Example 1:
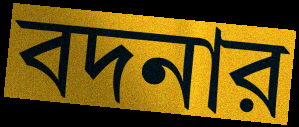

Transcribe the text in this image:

বদনার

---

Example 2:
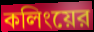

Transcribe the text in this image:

কলিংয়ের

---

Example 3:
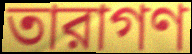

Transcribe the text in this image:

তারাগণ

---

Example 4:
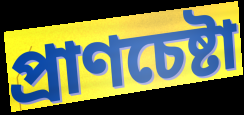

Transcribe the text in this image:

প্রাণচেষ্টা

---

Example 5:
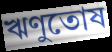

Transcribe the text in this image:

ঋণুতোষ